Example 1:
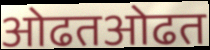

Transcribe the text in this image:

ओढतओढत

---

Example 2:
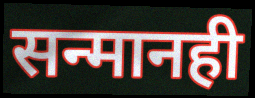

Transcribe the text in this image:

सन्मानही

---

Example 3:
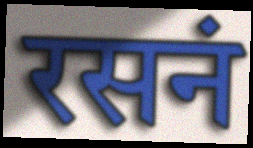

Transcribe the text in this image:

रसनं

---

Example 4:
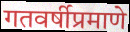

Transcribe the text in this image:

गतवर्षीप्रमाणे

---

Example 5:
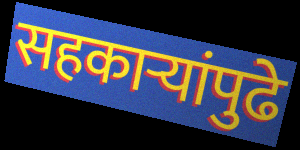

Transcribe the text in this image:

सहकाऱ्यांपुढे